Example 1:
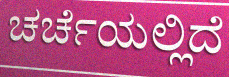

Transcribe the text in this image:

ಚರ್ಚೆಯಲ್ಲಿದೆ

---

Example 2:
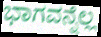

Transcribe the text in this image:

ಭಾಗವನ್ನೆಲ್ಲ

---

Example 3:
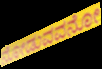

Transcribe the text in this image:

ನೋಡುವವನೋ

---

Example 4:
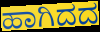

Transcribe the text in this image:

ಹಾಗಿದದ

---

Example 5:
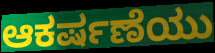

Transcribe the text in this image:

ಆಕರ್ಷಣೆಯು